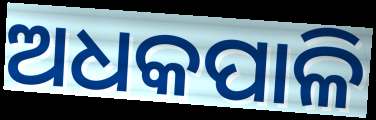
ଅଧକପାଳି